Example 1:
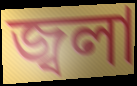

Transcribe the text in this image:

জ্বলা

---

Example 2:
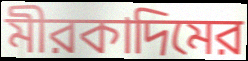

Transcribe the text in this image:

মীরকাদিমের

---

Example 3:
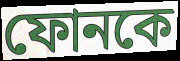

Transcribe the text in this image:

ফোনকে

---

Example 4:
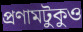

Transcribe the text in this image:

প্রণামটুকুও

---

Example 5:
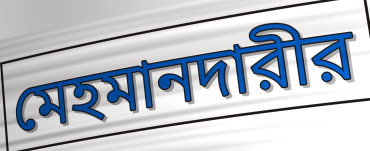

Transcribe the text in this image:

মেহমানদারীর